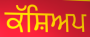
ਕੱਸ਼ਿਅਪ